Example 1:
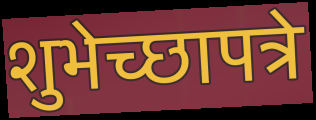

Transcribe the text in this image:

शुभेच्छापत्रे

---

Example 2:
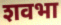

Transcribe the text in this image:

शवभा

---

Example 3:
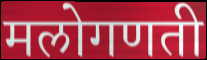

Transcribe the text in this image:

मलोगणती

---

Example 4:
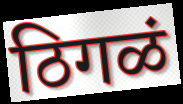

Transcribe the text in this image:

ठिगळं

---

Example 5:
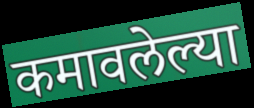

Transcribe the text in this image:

कमावलेल्या